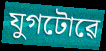
যুগটোৱে